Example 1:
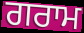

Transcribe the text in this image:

ਗਰਾਮ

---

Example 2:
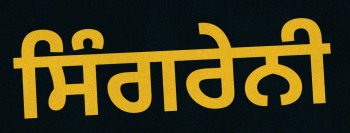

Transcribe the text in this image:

ਸਿੰਗਰੇਨੀ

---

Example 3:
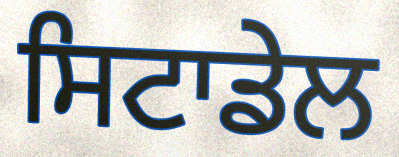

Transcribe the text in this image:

ਸਿਟਾਡੇਲ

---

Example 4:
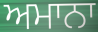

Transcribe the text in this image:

ਅਮਾਨਾ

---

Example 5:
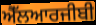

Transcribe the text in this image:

ਐੱਲਆਰਜੀਬੀ